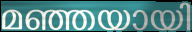
മഞ്ഞയായി